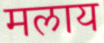
मलाय